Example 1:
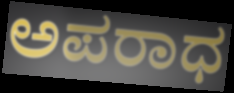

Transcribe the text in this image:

ಅಪರಾಧ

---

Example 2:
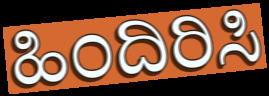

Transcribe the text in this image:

ಹಿಂದಿರಿಸಿ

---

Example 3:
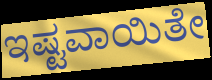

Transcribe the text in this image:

ಇಷ್ಟವಾಯಿತೇ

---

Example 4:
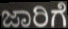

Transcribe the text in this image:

ಜಾರಿಗೆ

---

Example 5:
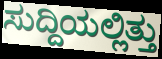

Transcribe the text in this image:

ಸುದ್ದಿಯಲ್ಲಿತ್ತು